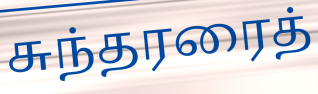
சுந்தரரைத்